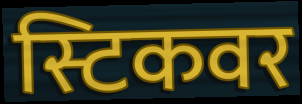
स्टिकवर